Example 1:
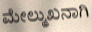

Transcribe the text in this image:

ಮೇಲ್ಮುಖನಾಗಿ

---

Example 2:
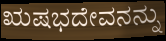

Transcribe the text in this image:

ಋಷಭದೇವನನ್ನು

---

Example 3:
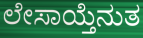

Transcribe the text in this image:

ಲೇಸಾಯ್ತೆನುತ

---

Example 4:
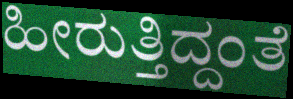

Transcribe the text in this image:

ಹೀರುತ್ತಿದ್ದಂತೆ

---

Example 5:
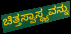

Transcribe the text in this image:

ಚಿತ್ತಸ್ವಾಸ್ಥ್ಯವನ್ನು